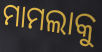
ମାମଲାକୁ